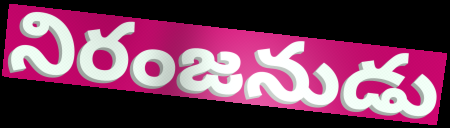
నిరంజనుడు